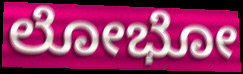
ಲೋಭೋ